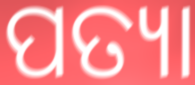
ପତ୍ୟା